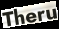
Theru